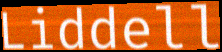
Liddell